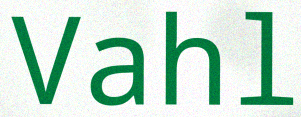
Vahl